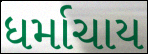
ધર્માચાય